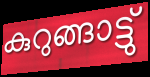
കുറുങ്ങാട്ടു്